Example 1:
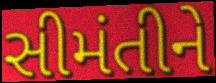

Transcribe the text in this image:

સીમંતીને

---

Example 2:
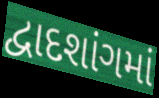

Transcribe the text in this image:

દ્વાદશાંગમાં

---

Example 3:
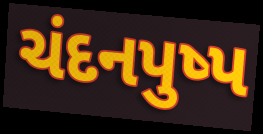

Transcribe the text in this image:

ચંદનપુષ્પ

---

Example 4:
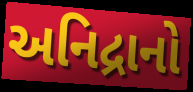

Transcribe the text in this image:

અનિદ્રાનો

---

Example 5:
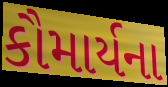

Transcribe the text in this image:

કૌમાર્યના